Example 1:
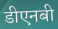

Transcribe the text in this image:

डीएनबी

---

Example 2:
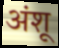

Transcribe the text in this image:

अंशू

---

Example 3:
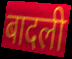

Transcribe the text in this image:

बादली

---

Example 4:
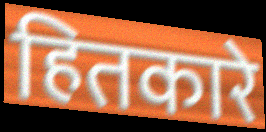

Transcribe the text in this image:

हितकारे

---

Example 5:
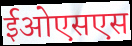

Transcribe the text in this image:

ईओएसएस